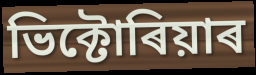
ভিক্টোৰিয়াৰ